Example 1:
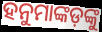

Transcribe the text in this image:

ହନୁମାଙ୍କଡ଼ଙ୍କୁ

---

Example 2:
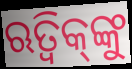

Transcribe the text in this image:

ଋତ୍ୱିକ୍‌ଙ୍କୁ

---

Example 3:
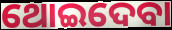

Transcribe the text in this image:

ଥୋଇଦେବା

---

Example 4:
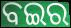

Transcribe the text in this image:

ବଇର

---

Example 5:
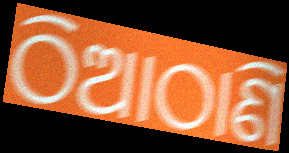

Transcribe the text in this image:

ଠିଆଠାଣି